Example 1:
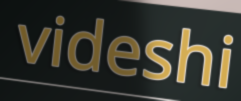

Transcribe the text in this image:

videshi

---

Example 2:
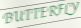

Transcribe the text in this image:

BUTTERFLY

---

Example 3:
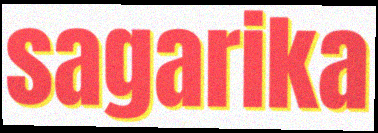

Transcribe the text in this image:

sagarika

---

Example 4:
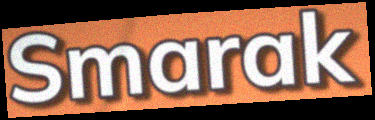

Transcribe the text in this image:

Smarak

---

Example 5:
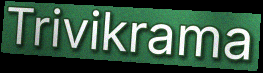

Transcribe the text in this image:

Trivikrama